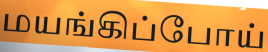
மயங்கிப்போய்